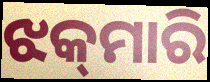
ଝକ୍‌ମାରି